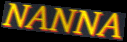
NANNA